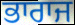
ਭਾਰਾਜ